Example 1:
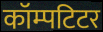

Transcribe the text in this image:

कॉम्पटिटर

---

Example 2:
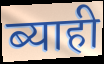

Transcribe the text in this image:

ब्याही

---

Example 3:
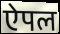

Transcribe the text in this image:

ऐपल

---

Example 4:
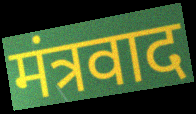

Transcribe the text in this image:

मंत्रवाद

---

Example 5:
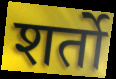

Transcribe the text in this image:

शर्तो